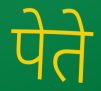
पेते